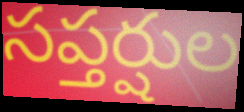
సప్తర్షుల